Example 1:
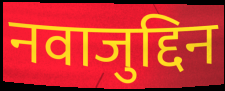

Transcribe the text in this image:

नवाजुद्दिन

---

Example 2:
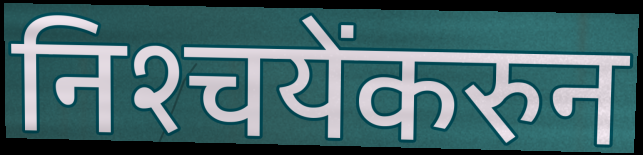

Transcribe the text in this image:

निश्चयेंकरुन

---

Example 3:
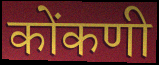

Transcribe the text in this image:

कोंकणी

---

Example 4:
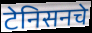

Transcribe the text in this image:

टेनिसनचे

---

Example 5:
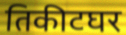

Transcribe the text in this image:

तिकीटघर